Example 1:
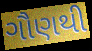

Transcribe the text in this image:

ગૌણથી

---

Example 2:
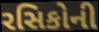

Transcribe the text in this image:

રસિકોની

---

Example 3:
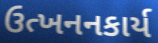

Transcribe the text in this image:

ઉત્ખનનકાર્ય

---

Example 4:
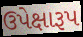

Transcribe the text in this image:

ઉપેક્ષારૂપ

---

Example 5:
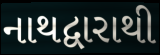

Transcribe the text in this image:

નાથદ્વારાથી